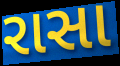
રાસા